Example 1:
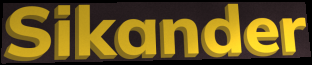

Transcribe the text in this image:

Sikander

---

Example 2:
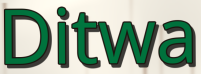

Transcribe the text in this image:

Ditwa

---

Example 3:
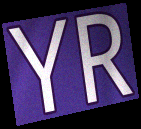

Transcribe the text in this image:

YR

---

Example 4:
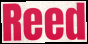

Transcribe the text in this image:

Reed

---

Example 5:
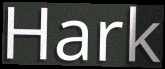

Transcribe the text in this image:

Hark